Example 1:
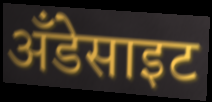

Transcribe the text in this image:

अँडेसाइट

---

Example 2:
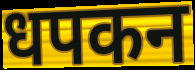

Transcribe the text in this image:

धपकन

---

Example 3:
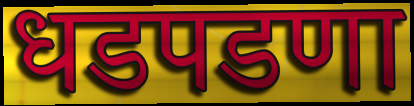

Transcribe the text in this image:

धडपडणा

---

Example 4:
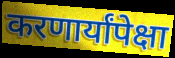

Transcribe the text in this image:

करणार्यांपेक्षा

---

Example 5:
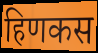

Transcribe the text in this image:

हिणकस